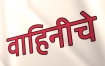
वाहिनीचे